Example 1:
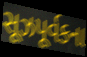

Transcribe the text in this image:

સૂઝપૂર્વકના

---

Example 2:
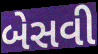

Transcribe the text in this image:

બેસવી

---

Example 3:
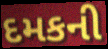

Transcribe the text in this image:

દમકની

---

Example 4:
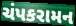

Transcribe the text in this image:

ચંપકરામન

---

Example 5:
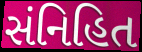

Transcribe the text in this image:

સંનિહિત